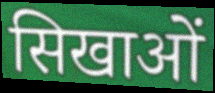
सिखाओं